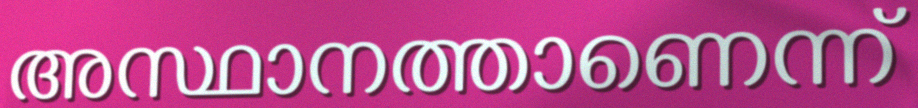
അസ്ഥാനത്താണെന്ന്